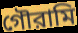
গৌরামি